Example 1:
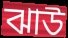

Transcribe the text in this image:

ঝাউ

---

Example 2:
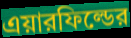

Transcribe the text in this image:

এয়ারফিল্ডের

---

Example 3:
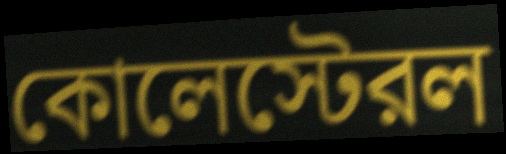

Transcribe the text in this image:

কোলেস্টেরল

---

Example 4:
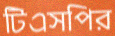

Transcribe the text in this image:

টিএসপির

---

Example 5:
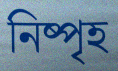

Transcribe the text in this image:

নিষ্পৃহ